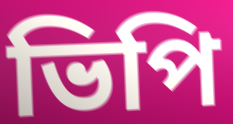
ভিপি